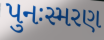
પુનઃસ્મરણ